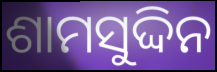
ଶାମସୁଦ୍ଦିନ